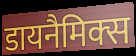
डायनैमिक्‍स